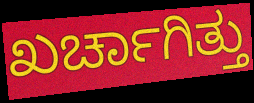
ಖರ್ಚಾಗಿತ್ತು